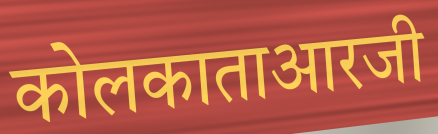
कोलकाताआरजी